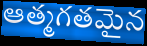
ఆత్మగతమైన